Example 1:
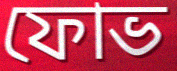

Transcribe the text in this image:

ফোভ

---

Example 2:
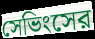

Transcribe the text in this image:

সেভিংসের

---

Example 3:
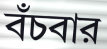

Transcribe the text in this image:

বঁচবার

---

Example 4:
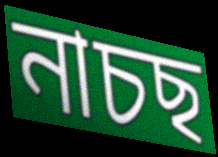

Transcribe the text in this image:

নাচছ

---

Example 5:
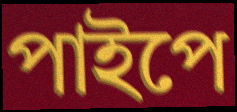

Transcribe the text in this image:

পাইপে